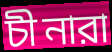
চীনারা